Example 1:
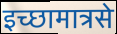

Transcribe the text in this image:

इच्छामात्रसे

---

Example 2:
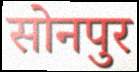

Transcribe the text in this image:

सोनपुर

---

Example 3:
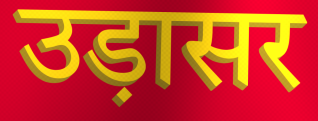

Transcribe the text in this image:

उड़ासर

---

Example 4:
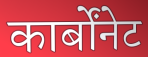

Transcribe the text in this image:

कार्बोंनेट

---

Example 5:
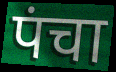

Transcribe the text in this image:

पंचा